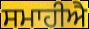
ਸਮਾਹੀਐ